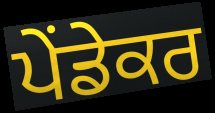
ਪੇਂਡੇਕਰ